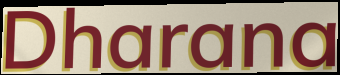
Dharana